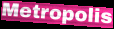
Metropolis